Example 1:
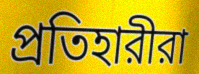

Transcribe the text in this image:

প্রতিহারীরা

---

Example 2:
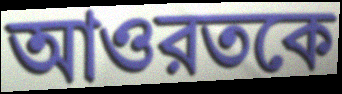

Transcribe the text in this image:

আওরতকে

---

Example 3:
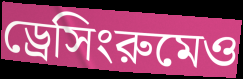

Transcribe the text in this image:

ড্রেসিংরুমেও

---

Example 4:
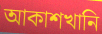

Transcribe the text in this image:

আকাশখানি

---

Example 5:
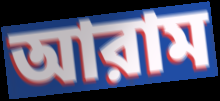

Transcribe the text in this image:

আরাম